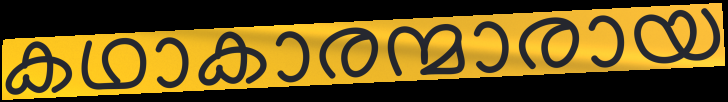
കഥാകാരന്മാരായ